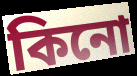
কিনো